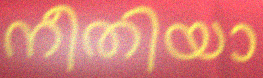
നീതിയാ